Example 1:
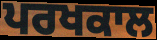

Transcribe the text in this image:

ਪਰਖਕਾਲ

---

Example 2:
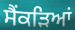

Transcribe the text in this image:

ਸੈਂਕੜਿਆਂ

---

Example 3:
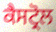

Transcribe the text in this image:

ਕੈਸਟ੍ਰੋਲ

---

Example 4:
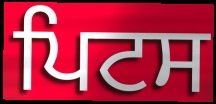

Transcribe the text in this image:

ਪਿਟਸ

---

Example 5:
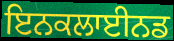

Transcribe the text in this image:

ਇਨਕਲਾਈਨਡ